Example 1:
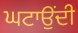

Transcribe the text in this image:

ਘਟਾਉਂਦੀ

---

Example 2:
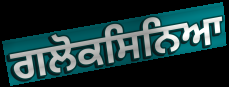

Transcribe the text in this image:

ਗਲੋਕਸਿਨਿਆ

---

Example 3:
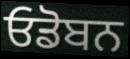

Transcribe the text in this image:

ਓਡੋਬਨ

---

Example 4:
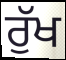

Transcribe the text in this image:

ਰੁੱਖ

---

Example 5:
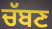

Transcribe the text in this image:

ਚੱਬਣ